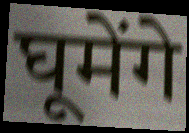
घूमेंगे